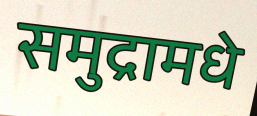
समुद्रामधे